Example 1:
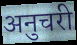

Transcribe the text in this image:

अनुचरी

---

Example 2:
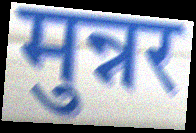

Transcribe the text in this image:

मुन्नर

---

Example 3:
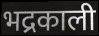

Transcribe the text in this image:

भद्रकाली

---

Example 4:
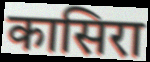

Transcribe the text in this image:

कासिरा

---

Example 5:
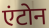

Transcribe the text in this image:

एंटोन